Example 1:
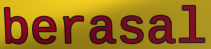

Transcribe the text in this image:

berasal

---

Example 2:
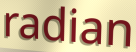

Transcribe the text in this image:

radian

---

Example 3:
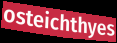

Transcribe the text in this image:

osteichthyes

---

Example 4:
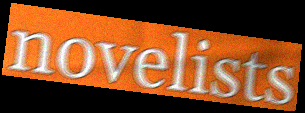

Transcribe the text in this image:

novelists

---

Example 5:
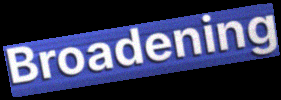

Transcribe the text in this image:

Broadening